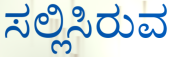
ಸಲ್ಲಿಸಿರುವ